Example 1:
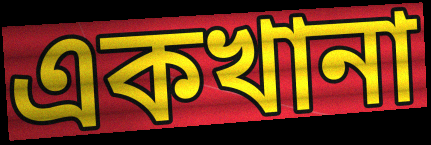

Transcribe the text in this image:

একখানা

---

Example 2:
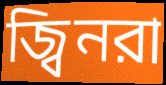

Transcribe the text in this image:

জ্বিনরা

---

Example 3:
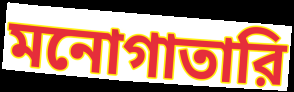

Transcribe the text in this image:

মনোগাতারি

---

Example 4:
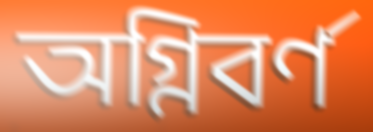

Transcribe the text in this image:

অগ্নিবর্ণ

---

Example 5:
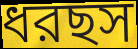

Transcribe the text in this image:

ধরছস